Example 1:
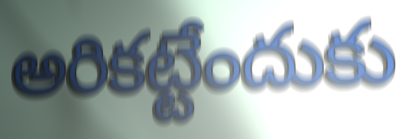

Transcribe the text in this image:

అరికట్టేందుకు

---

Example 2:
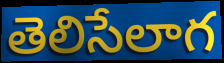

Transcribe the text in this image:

తెలిసేలాగ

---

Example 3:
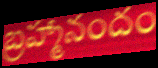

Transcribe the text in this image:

బ్రహ్మానందం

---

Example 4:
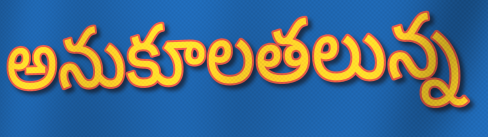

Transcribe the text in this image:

అనుకూలతలున్న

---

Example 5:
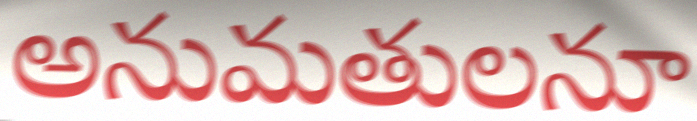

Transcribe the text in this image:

అనుమతులనూ